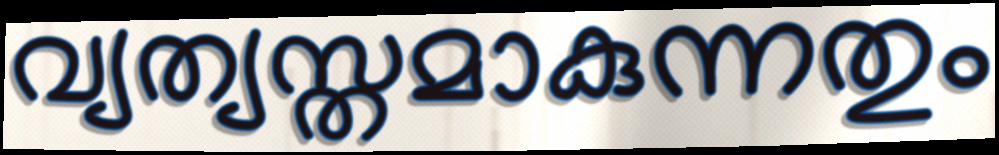
വ്യത്യസ്തമാകുന്നതും